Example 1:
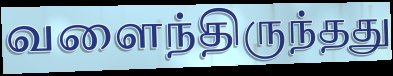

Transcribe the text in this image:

வளைந்திருந்தது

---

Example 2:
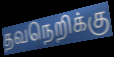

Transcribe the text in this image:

தவநெறிக்கு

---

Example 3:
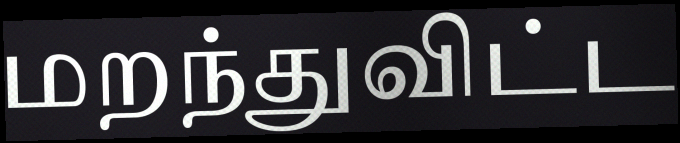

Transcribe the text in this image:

மறந்துவிட்ட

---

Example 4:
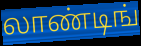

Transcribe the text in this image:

லாண்டிங்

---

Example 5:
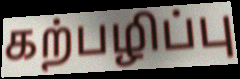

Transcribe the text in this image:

கற்பழிப்பு